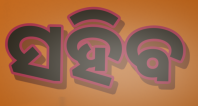
ସହିବ